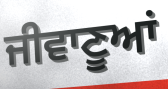
ਜੀਵਾਣੂਆਂ